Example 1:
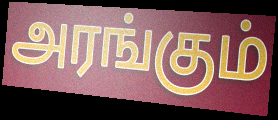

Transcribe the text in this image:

அரங்கும்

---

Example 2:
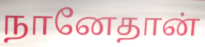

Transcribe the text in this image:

நானேதான்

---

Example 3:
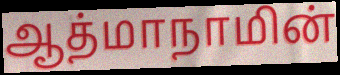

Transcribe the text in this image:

ஆத்மாநாமின்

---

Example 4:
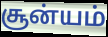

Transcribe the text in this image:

சூன்யம்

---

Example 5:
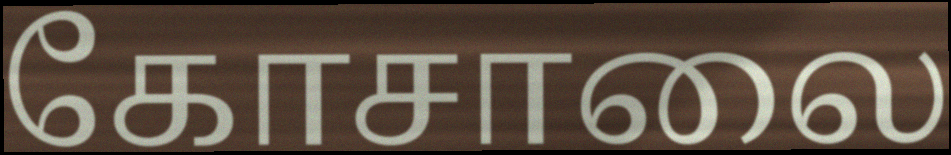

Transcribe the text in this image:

கோசாலை